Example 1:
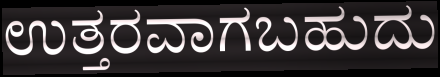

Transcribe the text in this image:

ಉತ್ತರವಾಗಬಹುದು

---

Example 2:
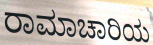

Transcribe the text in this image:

ರಾಮಾಚಾರಿಯ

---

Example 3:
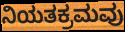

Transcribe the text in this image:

ನಿಯತಕ್ರಮವು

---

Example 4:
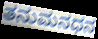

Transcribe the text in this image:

ತನುಮನಧನ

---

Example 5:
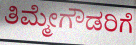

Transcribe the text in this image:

ತಿಮ್ಮೇಗೌಡರಿಗೆ